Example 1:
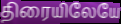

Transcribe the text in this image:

திரையிலேயே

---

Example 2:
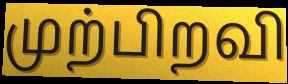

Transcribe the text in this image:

முற்பிறவி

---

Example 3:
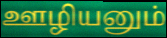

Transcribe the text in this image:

ஊழியனும்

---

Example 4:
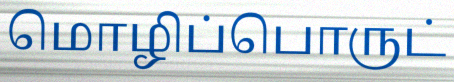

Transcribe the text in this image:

மொழிப்பொருட்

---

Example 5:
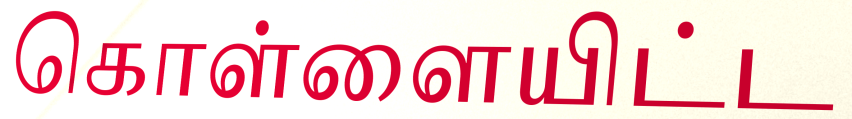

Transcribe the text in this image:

கொள்ளையிட்ட